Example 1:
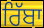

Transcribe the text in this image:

ਰਿੱਬਾ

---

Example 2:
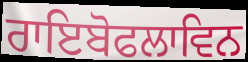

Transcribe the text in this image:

ਰਾਇਬੋਫਲਾਵਿਨ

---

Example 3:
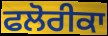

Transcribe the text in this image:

ਫਲੋਰੀਕਾ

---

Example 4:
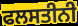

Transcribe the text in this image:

ਫਲਸਤੀਨੀ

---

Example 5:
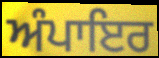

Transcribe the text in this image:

ਅੰਪਾਇਰ